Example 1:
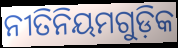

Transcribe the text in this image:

ନୀତିନିୟମଗୁଡ଼ିକ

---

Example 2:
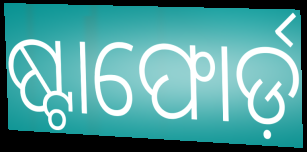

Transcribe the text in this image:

ଷ୍ଟାଫୋର୍ଡ଼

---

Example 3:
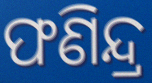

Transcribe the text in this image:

ଫଣିନ୍ଦ୍ର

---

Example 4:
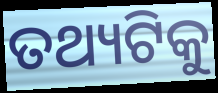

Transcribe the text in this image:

ତଥ୍ୟଟିକୁ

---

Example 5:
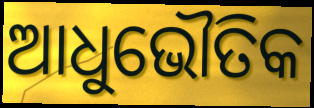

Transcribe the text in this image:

ଆଧୁଭୌତିକ